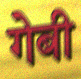
गेबी